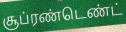
சூப்ரண்டெண்ட்